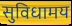
सुविधामय